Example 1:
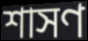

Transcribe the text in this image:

শাসণ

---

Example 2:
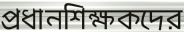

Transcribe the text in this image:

প্রধানশিক্ষকদের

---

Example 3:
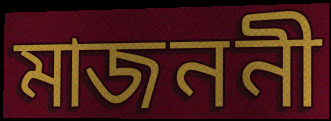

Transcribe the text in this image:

মাজননী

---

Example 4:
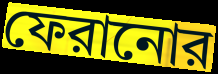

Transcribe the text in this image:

ফেরানোর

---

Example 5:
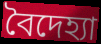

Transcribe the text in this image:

বৈদেহ্যা